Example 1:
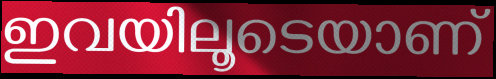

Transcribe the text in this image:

ഇവയിലൂടെയാണ്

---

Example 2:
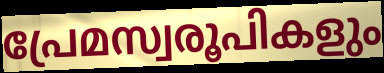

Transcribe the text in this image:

പ്രേമസ്വരൂപികളും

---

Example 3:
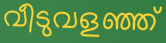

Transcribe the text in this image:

വീടുവളഞ്ഞ്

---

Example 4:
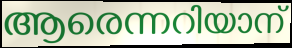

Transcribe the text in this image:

ആരെന്നറിയാന്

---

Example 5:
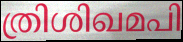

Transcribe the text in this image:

ത്രിശിഖമപി